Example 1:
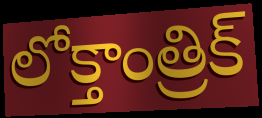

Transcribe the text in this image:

లోక్తాంత్రిక్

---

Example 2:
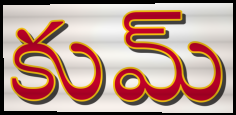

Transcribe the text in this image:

కుమ్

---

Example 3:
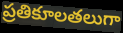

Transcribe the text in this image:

ప్రతికూలతలుగా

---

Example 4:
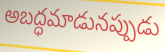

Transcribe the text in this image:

అబద్ధమాడునప్పుడు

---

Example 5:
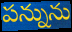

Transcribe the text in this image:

పన్నును